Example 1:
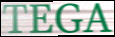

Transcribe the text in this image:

TEGA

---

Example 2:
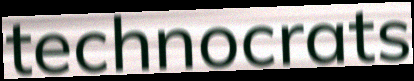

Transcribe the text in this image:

technocrats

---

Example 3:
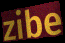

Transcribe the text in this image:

zibe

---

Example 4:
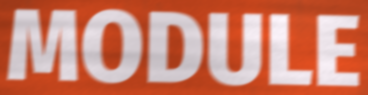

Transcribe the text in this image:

MODULE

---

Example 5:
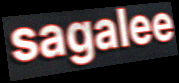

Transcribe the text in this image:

sagalee